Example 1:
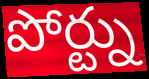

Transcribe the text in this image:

పోర్ట్ను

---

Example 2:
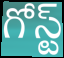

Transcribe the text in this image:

గోస్ట్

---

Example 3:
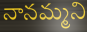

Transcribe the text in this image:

నానమ్మని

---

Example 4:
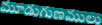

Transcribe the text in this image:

మూడుగుణములు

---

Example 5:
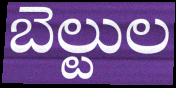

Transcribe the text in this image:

బెల్టుల